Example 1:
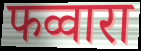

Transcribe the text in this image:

फव्वारा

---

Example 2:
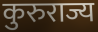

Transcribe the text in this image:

कुरुराज्य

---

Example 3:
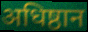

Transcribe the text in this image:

अधिष्ठान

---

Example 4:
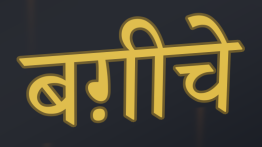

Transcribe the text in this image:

बग़ीचे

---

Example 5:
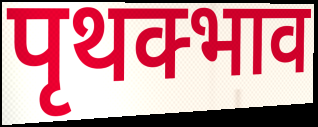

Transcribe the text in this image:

पृथक्भाव